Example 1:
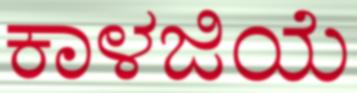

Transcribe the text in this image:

ಕಾಳಜಿಯೆ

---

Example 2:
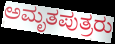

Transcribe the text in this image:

ಅಮೃತಪುತ್ರರು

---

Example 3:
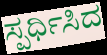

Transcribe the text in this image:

ಸ್ಪರ್ಧಿಸಿದ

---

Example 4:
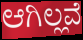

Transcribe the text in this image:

ಆಗಿಲ್ಲವೆ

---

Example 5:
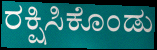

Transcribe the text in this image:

ರಕ್ಷಿಸಿಕೊಂಡು